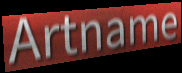
Artname